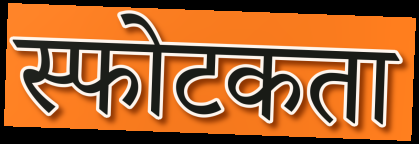
स्फोटकता